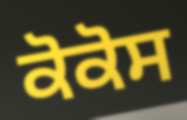
ਕੋਕੋਸ